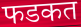
फडकत